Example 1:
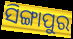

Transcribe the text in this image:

ସିଙ୍ଗାପୁର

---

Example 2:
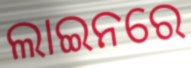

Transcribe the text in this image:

ଲାଇନରେ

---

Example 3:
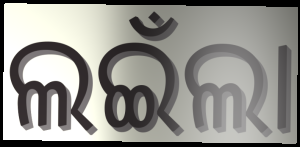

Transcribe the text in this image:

ଲଇଁଲା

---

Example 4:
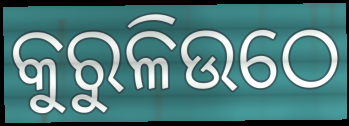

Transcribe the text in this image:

କୁରୁଳିଉଠେ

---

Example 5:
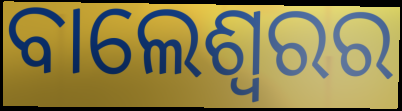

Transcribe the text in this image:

ବାଲେଶ୍ୱରର